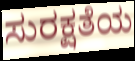
ಸುರಕ್ಷತೆಯ